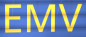
EMV